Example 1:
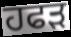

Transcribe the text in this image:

ਹਫੜ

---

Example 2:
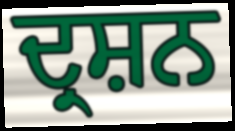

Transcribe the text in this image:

ਦ੍ਰਸ਼ਨ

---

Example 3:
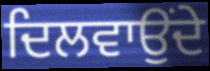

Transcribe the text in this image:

ਦਿਲਵਾਉਂਦੇ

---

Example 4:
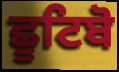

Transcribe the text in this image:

ਛੂਟਿਬੋ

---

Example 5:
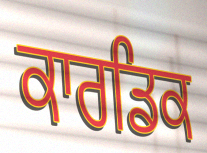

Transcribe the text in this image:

ਕਾਰਡਿਕ